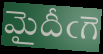
మైదీఁగె